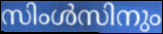
സിംൾസിനും